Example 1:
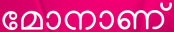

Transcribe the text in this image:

മോനാണ്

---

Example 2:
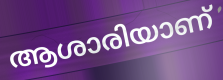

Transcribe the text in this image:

ആശാരിയാണ്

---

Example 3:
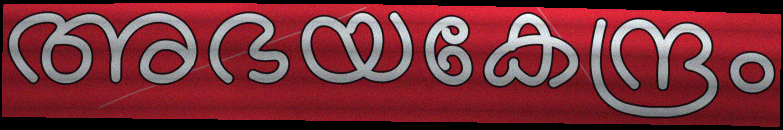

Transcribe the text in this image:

അഭയകേന്ദ്രം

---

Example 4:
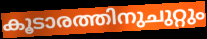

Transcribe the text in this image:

കൂടാരത്തിനുചുറ്റും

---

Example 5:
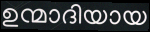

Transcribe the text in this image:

ഉന്മാദിയായ